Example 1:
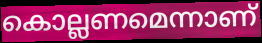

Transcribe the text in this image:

കൊല്ലണമെന്നാണ്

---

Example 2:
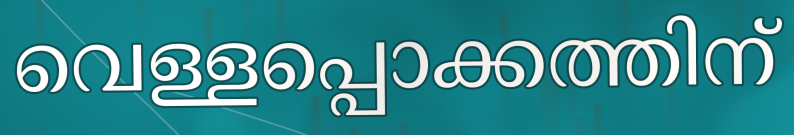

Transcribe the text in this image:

വെള്ളപ്പൊക്കത്തിന്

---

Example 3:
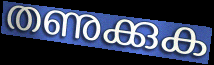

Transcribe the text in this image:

തണുക്കുക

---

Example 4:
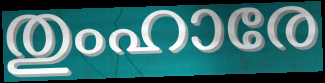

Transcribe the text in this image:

തുംഹാരേ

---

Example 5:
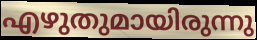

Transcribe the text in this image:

എഴുതുമായിരുന്നു